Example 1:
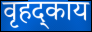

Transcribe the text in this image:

वृहद्काय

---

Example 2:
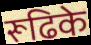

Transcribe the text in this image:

रूढिके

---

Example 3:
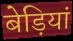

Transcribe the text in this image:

बेड़ियां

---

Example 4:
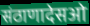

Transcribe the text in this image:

संठाणादेसओ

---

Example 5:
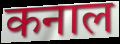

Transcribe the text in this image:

कनाल